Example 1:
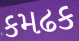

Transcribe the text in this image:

કમઢક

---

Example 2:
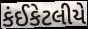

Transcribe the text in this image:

કંઈકેટલીયે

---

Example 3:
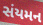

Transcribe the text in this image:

સંયમન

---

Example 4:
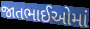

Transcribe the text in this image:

જાતભાઈઓમાં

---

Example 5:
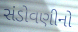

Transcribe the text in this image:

સંડોવણીનો